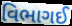
વિભાગઈ